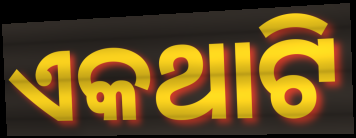
ଏକଥାଟି